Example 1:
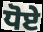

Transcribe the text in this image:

ਧੋਏ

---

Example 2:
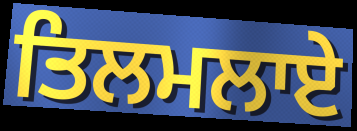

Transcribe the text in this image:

ਤਿਲਮਲਾਏ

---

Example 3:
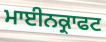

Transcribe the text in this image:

ਮਾਈਨਕ੍ਰਾਫਟ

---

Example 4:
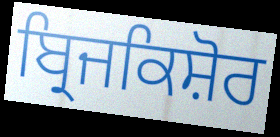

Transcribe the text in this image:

ਬ੍ਰਿਜਕਿਸ਼ੋਰ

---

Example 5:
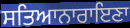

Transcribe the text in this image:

ਸਤਿਆਨਾਰਾਇਣਾ